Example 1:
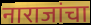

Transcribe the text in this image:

नाराजांचा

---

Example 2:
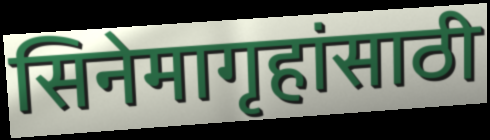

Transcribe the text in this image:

सिनेमागृहांसाठी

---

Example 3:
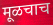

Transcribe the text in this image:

मूळचाच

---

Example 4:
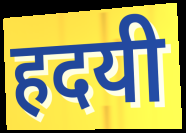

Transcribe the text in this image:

हदयी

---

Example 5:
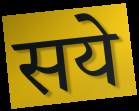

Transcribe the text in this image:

सये